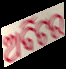
ଅର୍ବିଟର